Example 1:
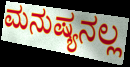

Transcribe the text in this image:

ಮನುಷ್ಯನಲ್ಲ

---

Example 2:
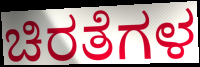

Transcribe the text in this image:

ಚಿರತೆಗಳ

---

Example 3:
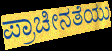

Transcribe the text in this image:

ಪ್ರಾಚೀನತೆಯು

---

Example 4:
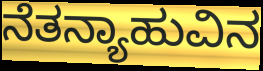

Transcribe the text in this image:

ನೆತನ್ಯಾಹುವಿನ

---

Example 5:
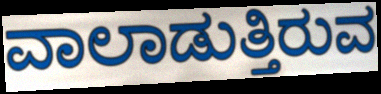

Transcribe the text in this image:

ವಾಲಾಡುತ್ತಿರುವ